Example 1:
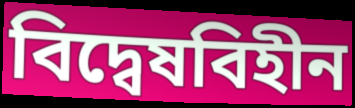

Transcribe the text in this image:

বিদ্বেষবিহীন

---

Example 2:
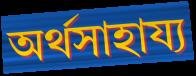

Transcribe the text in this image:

অর্থসাহায্য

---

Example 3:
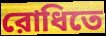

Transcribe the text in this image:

রোধিতে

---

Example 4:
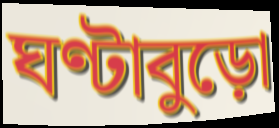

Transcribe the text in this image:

ঘণ্টাবুড়ো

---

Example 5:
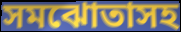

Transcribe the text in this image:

সমঝোতাসহ